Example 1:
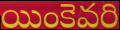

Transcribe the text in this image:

యింకెవరి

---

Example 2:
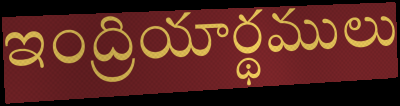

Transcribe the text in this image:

ఇంద్రియార్థములు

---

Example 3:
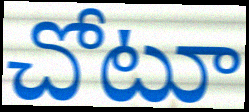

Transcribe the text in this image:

చోటూ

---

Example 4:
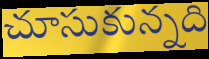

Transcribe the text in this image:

చూసుకున్నది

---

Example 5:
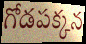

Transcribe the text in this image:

గోడపక్కన